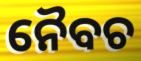
ନୈବଚ